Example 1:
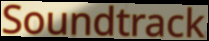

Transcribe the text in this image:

Soundtrack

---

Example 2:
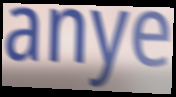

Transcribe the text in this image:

anye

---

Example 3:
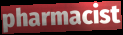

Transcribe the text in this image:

pharmacist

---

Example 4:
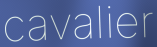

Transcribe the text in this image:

cavalier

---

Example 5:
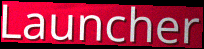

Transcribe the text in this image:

Launcher